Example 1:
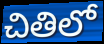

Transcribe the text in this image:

చితిలో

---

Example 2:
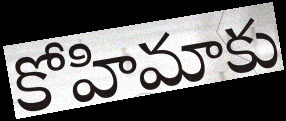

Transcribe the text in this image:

కోహిమాకు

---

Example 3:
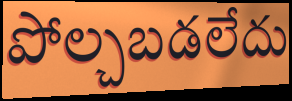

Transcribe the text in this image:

పోల్చబడలేదు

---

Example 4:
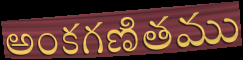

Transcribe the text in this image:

అంకగణితము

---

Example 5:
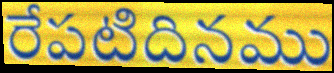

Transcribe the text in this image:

రేపటిదినము